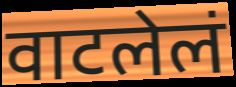
वाटलेलं